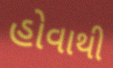
હોવાથી